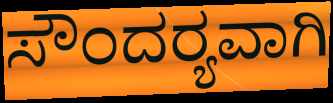
ಸೌಂದರ‍್ಯವಾಗಿ